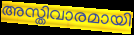
അസ്തിവാരമായി